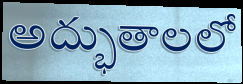
అద్భుతాలలో